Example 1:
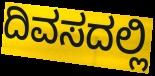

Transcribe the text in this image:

ದಿವಸದಲ್ಲಿ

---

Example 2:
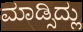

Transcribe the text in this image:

ಮಾಡ್ಸಿದ್ಲು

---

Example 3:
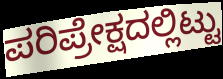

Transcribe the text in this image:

ಪರಿಪ್ರೇಕ್ಷದಲ್ಲಿಟ್ಟು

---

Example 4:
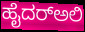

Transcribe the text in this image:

ಹೈದರ್‌ಅಲಿ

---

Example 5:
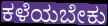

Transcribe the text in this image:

ಕಳೆಯಬೇಕು